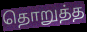
தொறுத்த